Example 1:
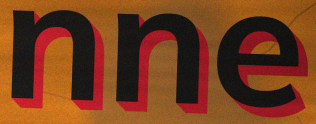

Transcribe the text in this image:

nne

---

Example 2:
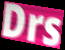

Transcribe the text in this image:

Drs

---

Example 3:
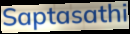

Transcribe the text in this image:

Saptasathi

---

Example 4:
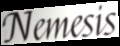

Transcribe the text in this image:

Nemesis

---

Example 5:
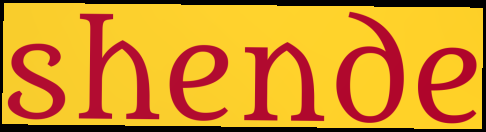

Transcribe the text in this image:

shende